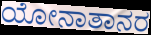
ಯೋನಾತಾನರ